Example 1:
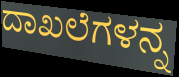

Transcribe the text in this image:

ದಾಖಲೆಗಳನ್ನ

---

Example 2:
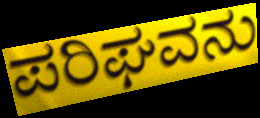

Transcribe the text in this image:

ಪರಿಘವನು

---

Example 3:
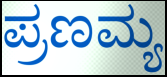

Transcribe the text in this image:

ಪ್ರಣಮ್ಯ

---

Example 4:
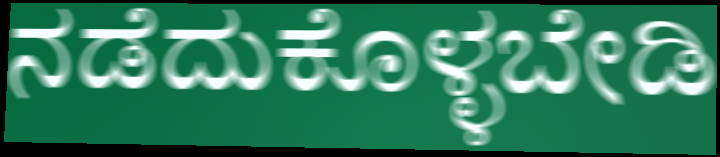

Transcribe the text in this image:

ನಡೆದುಕೊಳ್ಳಬೇಡಿ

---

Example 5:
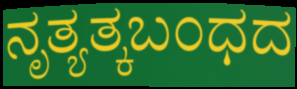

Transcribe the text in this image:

ನೃತ್ಯತ್ಕಬಂಧದ